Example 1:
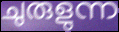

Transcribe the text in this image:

ചുരുളുന്ന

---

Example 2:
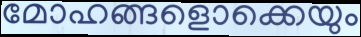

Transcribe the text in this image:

മോഹങ്ങളൊക്കെയും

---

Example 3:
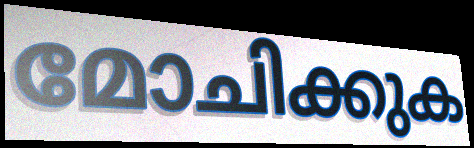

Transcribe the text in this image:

മോചിക്കുക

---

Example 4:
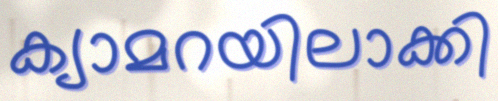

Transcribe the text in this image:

ക്യാമറയിലാക്കി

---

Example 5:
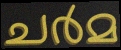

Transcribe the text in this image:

ചർമ